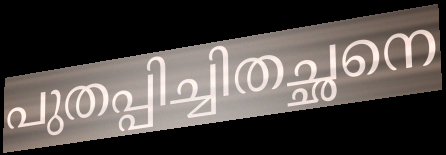
പുതപ്പിച്ചിതച്ഛനെ